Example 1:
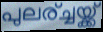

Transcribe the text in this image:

പുലര്ച്ചയ്ക്ക്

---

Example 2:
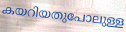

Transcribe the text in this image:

കയറിയതുപോലുള്ള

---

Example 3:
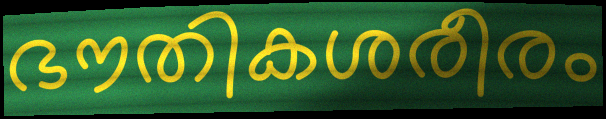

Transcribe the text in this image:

ഭൗതികശരീരം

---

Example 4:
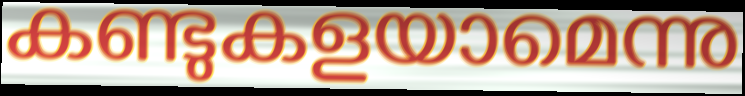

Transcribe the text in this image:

കണ്ടുകളയാമെന്നു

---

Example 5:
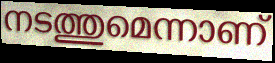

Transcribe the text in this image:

നടത്തുമെന്നാണ്